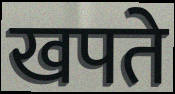
खपते